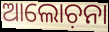
ଆଲୋଚ଼ନା